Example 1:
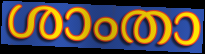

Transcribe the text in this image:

ശാംതാ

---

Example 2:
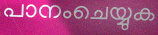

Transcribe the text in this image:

പാനംചെയ്യുക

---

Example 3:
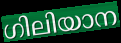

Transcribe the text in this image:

ഗിലിയാന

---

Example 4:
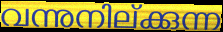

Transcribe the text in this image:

വന്നുനില്ക്കുന്ന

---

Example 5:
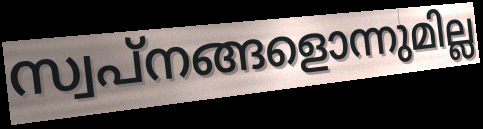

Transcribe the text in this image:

സ്വപ്നങ്ങളൊന്നുമില്ല